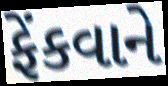
ફેંકવાને